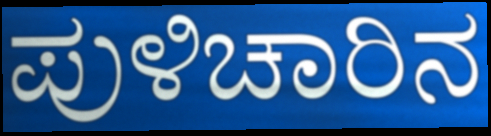
ಪುಳಿಚಾರಿನ